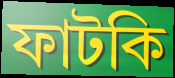
ফাটকি